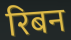
रिबन